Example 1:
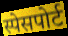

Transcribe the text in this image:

स्पेसपोर्ट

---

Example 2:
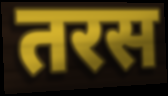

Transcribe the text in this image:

तरस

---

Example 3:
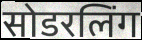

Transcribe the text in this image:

सोडरलिंग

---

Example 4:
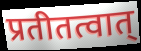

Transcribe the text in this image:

प्रतीतत्वात्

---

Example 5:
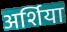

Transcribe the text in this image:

अर्शिया